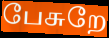
பேசுறே